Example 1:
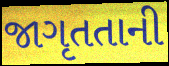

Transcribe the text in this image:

જાગૃતતાની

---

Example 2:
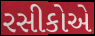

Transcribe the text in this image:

રસીકોએ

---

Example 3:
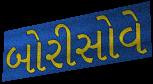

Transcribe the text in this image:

બોરીસોવે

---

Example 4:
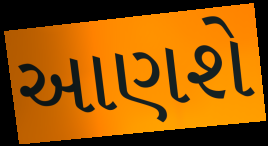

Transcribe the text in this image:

આણશે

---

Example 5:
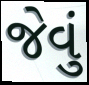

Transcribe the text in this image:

જેવું